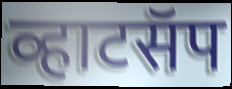
व्हाटसॅप